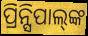
ପ୍ରିନ୍ସିପାଲ୍‍ଙ୍କ